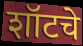
शॉटचे